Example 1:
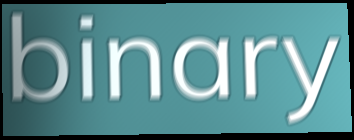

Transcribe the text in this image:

binary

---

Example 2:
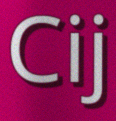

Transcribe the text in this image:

Cij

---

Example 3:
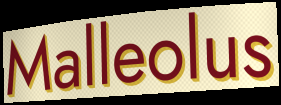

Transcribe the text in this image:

Malleolus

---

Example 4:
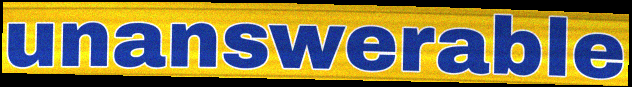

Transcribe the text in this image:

unanswerable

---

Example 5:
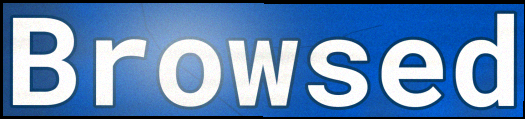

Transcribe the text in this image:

Browsed